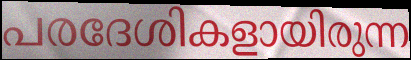
പരദേശികളായിരുന്ന